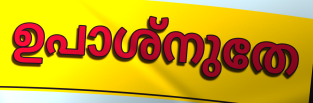
ഉപാശ്നുതേ